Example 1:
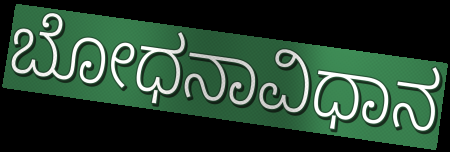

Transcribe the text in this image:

ಬೋಧನಾವಿಧಾನ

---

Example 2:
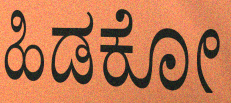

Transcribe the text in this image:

ಹಿಡಕೋ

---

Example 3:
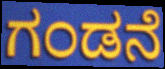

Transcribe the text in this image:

ಗಂಡನೆ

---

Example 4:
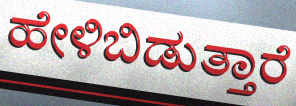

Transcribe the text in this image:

ಹೇಳಿಬಿಡುತ್ತಾರೆ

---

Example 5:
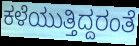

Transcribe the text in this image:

ಕಳೆಯುತ್ತಿದ್ದರಂತೆ